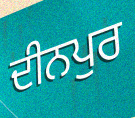
ਦੀਨਪੁਰ